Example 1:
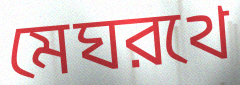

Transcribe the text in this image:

মেঘরথে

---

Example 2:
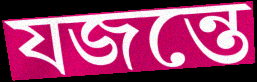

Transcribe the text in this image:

যজন্তে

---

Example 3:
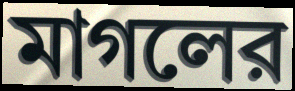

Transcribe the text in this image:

মাগলের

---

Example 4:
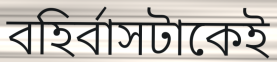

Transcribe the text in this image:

বহির্বাসটাকেই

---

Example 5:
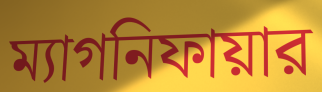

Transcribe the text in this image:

ম্যাগনিফায়ার